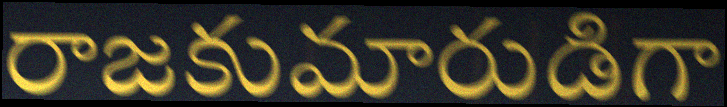
రాజకుమారుడిగా